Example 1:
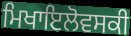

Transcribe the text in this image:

ਮਿਖਾਇਲੋਵਸਕੀ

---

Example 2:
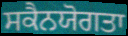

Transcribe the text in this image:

ਸਕੈਨਯੋਗਤਾ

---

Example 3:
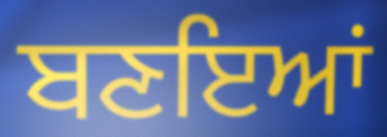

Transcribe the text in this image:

ਬਣਇਆਂ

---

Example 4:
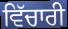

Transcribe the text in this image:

ਵਿੱਚਾਰੀ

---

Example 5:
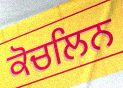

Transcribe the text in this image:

ਕੋਚਲਿਨ